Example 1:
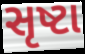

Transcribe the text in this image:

સૃષ્ટા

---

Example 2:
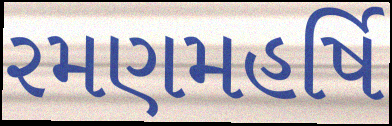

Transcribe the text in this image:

રમણમહર્ષિ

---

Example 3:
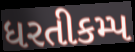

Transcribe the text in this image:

ધરતીકમ્પ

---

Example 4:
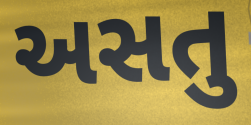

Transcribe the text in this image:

અસતુ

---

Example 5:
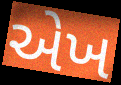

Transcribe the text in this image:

એખ